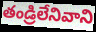
తండ్రిలేనివాని